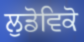
ਲੁਡੋਵਿਕੋ